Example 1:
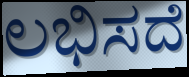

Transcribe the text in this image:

ಲಭಿಸದೆ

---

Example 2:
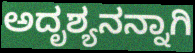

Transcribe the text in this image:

ಅದೃಶ್ಯನನ್ನಾಗಿ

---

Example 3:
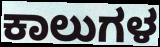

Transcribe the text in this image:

ಕಾಲುಗಳ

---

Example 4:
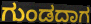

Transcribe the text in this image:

ಗುಂಡದಾಗ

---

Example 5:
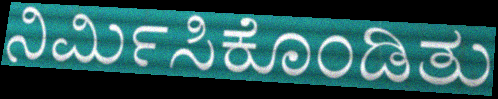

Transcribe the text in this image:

ನಿರ್ಮಿಸಿಕೊಂಡಿತು